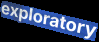
exploratory